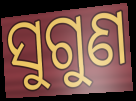
ସୁଗୁଣ